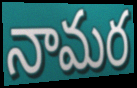
నామర